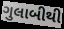
ગુલાબીથી